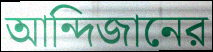
আন্দিজানের